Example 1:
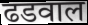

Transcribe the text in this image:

ढडवाल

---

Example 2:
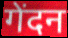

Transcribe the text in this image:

गेंदन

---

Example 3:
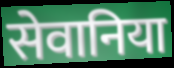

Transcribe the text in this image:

सेवानिया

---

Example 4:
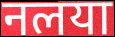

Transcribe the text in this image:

नलया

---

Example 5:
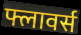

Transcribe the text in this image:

फ्लावर्स